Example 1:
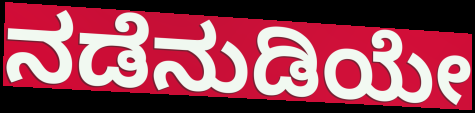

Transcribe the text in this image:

ನಡೆನುಡಿಯೇ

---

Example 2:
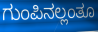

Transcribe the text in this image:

ಗುಂಪಿನಲ್ಲಂತೂ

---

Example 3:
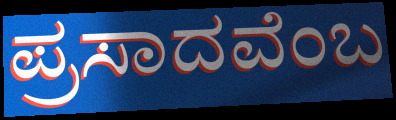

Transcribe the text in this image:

ಪ್ರಸಾದವೆಂಬ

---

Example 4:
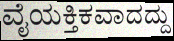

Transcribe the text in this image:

ವೈಯಕ್ತಿಕವಾದದ್ದು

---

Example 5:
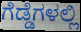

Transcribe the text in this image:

ಗೆಡ್ಡೆಗಳಲ್ಲಿ